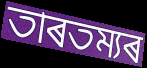
তাৰতম্যৰ